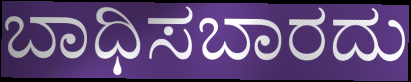
ಬಾಧಿಸಬಾರದು